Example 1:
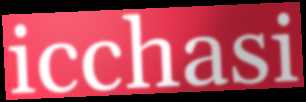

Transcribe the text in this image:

icchasi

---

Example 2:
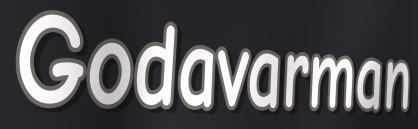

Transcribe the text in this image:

Godavarman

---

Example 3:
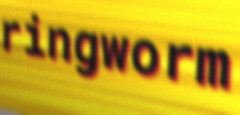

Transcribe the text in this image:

ringworm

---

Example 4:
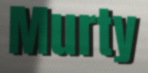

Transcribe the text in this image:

Murty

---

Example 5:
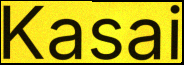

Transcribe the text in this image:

Kasai